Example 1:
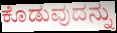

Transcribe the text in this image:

ಕೊಡುವುದನ್ನು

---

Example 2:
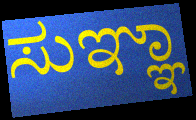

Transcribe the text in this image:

ಸುಞ್ಞಾ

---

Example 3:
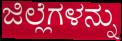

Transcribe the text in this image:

ಜಿಲ್ಲೆಗಳನ್ನು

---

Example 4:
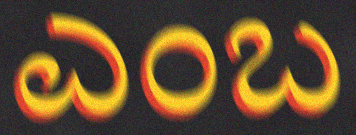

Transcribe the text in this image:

ಎಂಬ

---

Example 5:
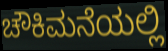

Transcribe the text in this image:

ಚೌಕಿಮನೆಯಲ್ಲಿ